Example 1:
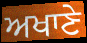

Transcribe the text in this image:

ਅਖਾਣੇ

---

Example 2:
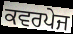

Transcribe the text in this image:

ਕਵਰਪੇਜ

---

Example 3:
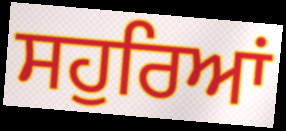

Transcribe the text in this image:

ਸਹੁਰਿਆਂ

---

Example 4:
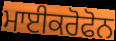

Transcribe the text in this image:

ਮਾਈਕਰੋਫੋਨ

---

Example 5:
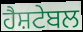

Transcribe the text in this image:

ਹੈਸ਼ਟੇਬਲ